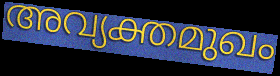
അവ്യക്തമുഖം